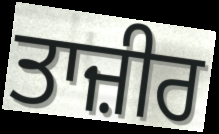
ਤਾਜ਼ੀਰ